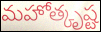
మహోత్కృష్ట